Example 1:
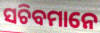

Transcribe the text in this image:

ସଚିବମାନେ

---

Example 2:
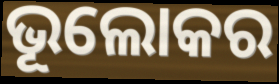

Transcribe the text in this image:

ଭୂଲୋକର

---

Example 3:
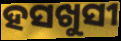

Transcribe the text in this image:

ହସଖୁସୀ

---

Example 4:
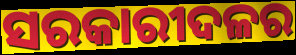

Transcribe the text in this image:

ସରକାରୀଦଳର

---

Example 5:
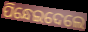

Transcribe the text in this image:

ପିନ୍ଧେଇଦେଲେ